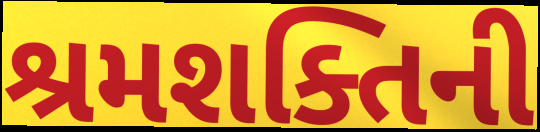
શ્રમશક્તિની